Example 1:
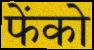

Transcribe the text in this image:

फेंको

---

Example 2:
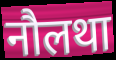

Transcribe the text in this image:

नौलथा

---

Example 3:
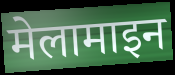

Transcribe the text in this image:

मेलामाइन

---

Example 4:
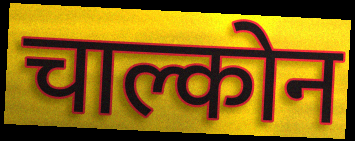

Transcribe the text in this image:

चाल्कोन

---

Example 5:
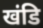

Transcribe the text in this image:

खंडि